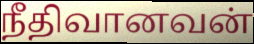
நீதிவானவன்